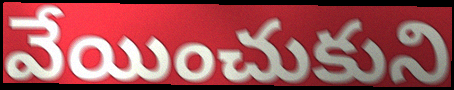
వేయించుకుని